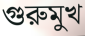
গুরুমুখ